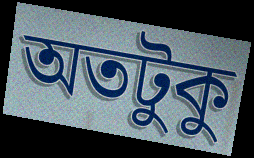
অতটুকু